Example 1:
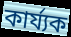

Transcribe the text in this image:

কাৰ্য্যক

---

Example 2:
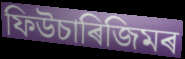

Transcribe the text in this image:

ফিউচাৰিজিমৰ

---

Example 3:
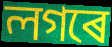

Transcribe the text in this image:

লগৰে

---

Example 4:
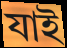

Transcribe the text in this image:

যাই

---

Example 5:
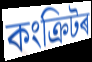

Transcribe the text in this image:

কংক্ৰিটৰ